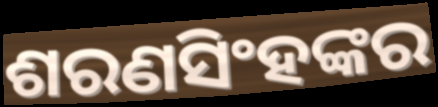
ଶରଣସିଂହଙ୍କର